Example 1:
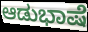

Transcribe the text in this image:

ಆಡುಭಾಷೆ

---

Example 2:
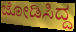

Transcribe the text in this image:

ಜೋಡಿಸಿದ್ದ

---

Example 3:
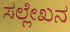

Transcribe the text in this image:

ಸಲ್ಲೇಖನ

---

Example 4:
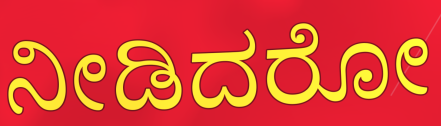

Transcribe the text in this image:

ನೀಡಿದರೋ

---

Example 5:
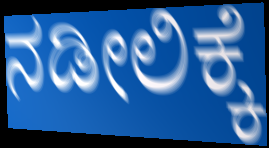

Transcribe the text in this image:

ನಡೀಲಿಕ್ಕೆ